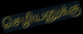
செழியனுக்கு